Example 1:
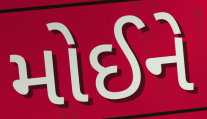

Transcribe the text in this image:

મોઈને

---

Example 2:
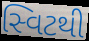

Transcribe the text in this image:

સ્વિટથી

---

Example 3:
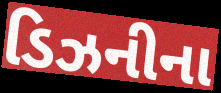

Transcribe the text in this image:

ડિઝનીના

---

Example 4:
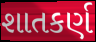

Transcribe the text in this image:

શાતકર્ણ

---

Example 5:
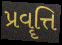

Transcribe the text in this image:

પ્રવૄત્તિ